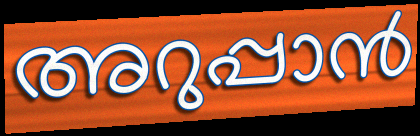
അറുപ്പാൻ